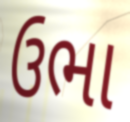
ઉભા